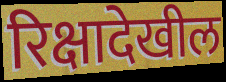
रिक्षादेखील